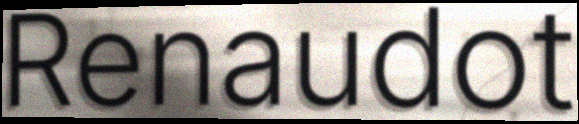
Renaudot